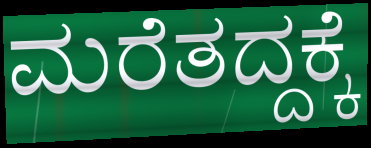
ಮರೆತದ್ದಕ್ಕೆ